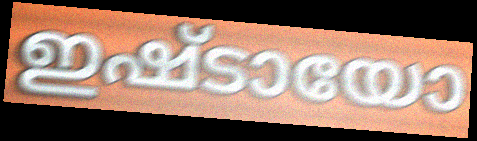
ഇഷ്ടായോ